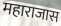
महाराजास